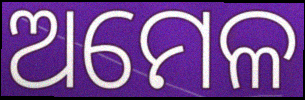
ଅମେଳ